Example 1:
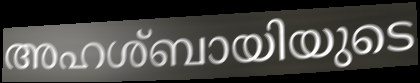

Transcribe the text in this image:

അഹശ്ബായിയുടെ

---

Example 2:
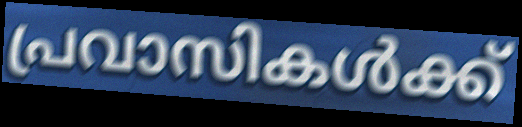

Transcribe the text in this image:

പ്രവാസികൾക്ക്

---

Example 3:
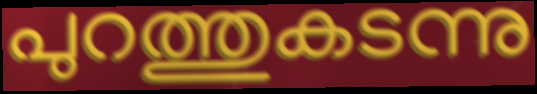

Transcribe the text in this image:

പുറത്തുകടന്നു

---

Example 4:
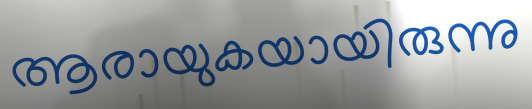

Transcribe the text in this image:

ആരായുകയായിരുന്നു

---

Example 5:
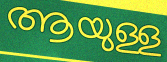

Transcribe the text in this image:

ആയുള്ള